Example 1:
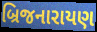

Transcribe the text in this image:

બ્રિજનારાયણ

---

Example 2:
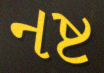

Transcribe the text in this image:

નષ્ટ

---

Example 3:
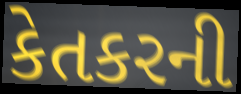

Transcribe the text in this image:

કેતકરની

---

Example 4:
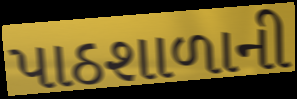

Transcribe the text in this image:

પાઠશાળાની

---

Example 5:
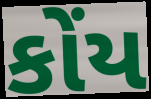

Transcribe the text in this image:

કોંય